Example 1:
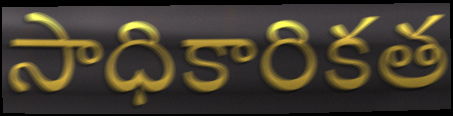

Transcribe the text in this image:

సాధికారికత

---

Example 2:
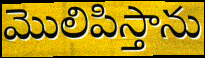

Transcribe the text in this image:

మొలిపిస్తాను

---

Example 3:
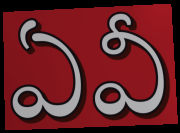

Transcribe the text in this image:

ఏవీ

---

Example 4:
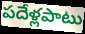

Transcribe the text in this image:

పదేళ్లపాటు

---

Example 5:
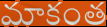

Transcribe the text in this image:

మాకంత